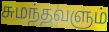
சுமந்தவளும்